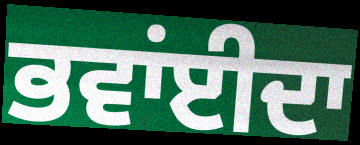
ਭਵਾਂਈਦਾ